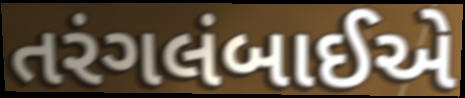
તરંગલંબાઈએ